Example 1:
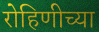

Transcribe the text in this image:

रोहिणीच्या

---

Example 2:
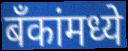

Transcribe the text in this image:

बँकांमध्ये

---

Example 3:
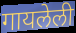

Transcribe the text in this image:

गायलेली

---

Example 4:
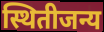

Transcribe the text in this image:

स्थितीजन्य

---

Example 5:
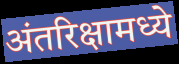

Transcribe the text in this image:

अंतरिक्षामध्ये